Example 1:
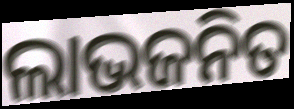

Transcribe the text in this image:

ଲାଭଜନିତ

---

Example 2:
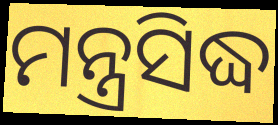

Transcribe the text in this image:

ମନ୍ତ୍ରସିଦ୍ଧ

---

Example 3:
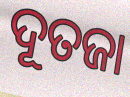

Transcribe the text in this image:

ଦୂତଜା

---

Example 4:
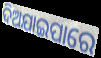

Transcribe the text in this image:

ଦିଅଯାଇପାରେ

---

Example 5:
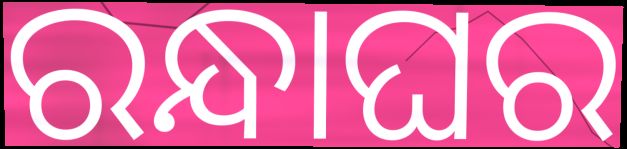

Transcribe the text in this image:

ରନ୍ଧାଘର